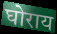
घोराय